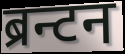
ब्रन्टन